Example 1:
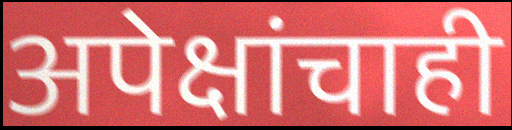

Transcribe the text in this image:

अपेक्षांचाही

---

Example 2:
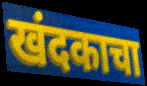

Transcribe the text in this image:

खंदकाचा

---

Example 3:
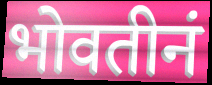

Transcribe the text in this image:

भोवतीनं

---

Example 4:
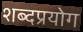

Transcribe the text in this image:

शब्दप्रयोग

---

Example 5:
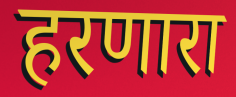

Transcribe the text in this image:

हरणारा